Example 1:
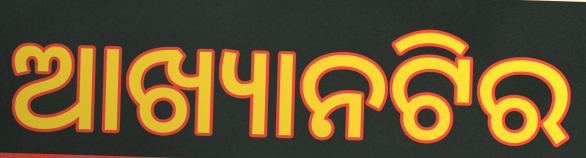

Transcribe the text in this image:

ଆଖ୍ୟାନଟିର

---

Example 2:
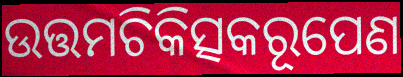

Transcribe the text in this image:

ଉତ୍ତମଚିକିତ୍ସକରୂପେଣ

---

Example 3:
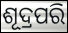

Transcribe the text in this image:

ଶୂଦ୍ରପରି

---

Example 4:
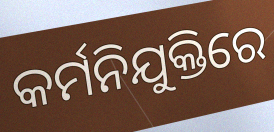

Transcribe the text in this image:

କର୍ମନିଯୁକ୍ତିରେ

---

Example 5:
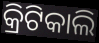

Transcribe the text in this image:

କ୍ରିଟିକାଲି